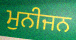
ਮੁਨੀਜਨ